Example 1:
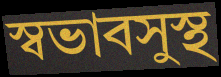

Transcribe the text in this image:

স্বভাবসুস্থ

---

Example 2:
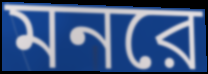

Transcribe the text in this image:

মনরে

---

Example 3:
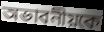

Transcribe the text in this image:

অভাবনীয়কে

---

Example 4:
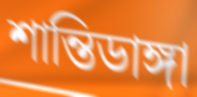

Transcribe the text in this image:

শান্তিডাঙ্গা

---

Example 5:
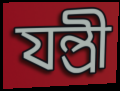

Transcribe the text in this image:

যন্ত্রী